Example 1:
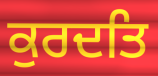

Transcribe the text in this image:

ਕੁਰਦਤਿ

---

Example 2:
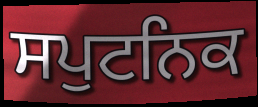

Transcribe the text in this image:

ਸਪੁਟਨਿਕ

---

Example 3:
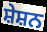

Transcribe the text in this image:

ਸ਼ੇਸ਼ਨ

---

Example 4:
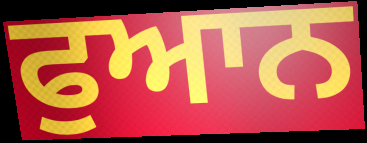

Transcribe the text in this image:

ਫੁਆਨ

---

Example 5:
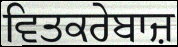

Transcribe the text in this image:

ਵਿਤਕਰੇਬਾਜ਼